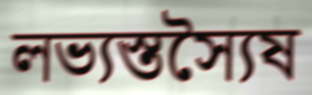
লভ্যস্তস্যৈষ